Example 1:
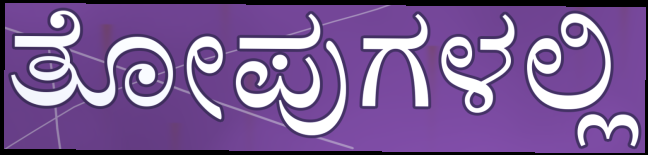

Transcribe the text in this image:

ತೋಪುಗಳಲ್ಲಿ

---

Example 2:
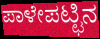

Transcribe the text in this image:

ಪಾಳೇಪಟ್ಟಿನ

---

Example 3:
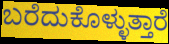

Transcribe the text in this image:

ಬರೆದುಕೊಳ್ಳುತ್ತಾರೆ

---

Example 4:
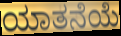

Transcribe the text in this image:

ಯಾತನೆಯೆ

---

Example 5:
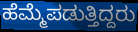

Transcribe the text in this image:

ಹೆಮ್ಮೆಪಡುತ್ತಿದ್ದರು